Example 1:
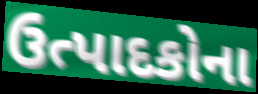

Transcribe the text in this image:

ઉત્પાદકોના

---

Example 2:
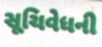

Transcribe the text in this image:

સૂચિવેધની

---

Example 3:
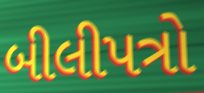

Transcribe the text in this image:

બીલીપત્રો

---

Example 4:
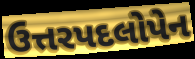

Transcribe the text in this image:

ઉત્તરપદલોપેન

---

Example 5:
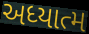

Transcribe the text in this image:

અધ્યાત્મ